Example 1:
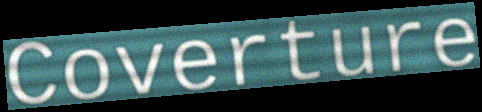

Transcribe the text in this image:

Coverture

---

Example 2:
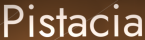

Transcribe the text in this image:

Pistacia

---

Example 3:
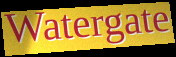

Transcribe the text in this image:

Watergate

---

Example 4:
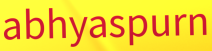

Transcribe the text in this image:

abhyaspurn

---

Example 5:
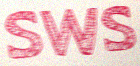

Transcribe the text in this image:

SWS